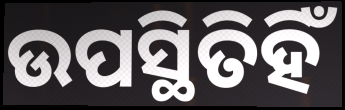
ଉପସ୍ଥିତିହିଁ